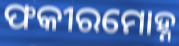
ଫକୀରମୋହ୍ନ